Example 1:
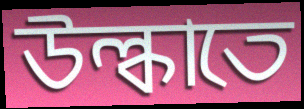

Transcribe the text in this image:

উল্কাতে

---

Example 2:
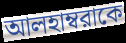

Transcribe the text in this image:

আলহাম্বরাকে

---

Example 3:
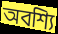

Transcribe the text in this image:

অবশ্যি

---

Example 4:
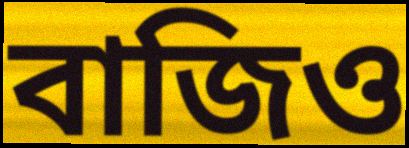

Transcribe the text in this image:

বাজিও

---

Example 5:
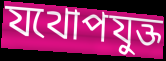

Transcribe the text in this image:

যথোপযুক্ত